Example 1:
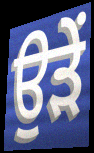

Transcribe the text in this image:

ਉੜੇਂ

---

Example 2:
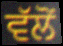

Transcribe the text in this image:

ਵੱਲੋਂ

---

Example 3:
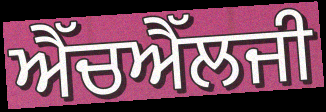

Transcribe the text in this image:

ਐੱਚਐੱਲਜੀ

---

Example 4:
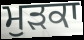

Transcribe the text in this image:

ਮੁੜਕਾ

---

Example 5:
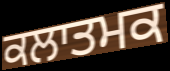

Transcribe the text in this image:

ਕਲਾਤਮਕ